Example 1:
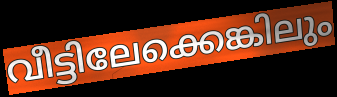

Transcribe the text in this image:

വീട്ടിലേക്കെങ്കിലും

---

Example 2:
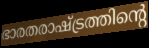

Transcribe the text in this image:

ഭാരതരാഷ്ട്രത്തിന്റെ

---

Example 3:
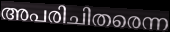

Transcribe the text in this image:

അപരിചിതരെന്ന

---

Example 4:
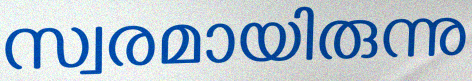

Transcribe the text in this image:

സ്വരമായിരുന്നു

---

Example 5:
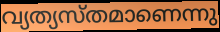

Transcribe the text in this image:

വ്യത്യസ്തമാണെന്നു